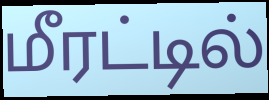
மீரட்டில்